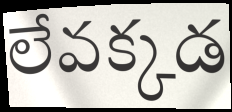
లేవక్కడ